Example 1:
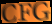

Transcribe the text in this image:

CFG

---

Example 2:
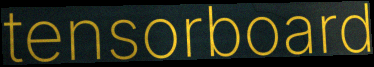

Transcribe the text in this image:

tensorboard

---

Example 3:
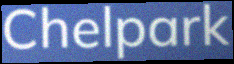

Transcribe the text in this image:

Chelpark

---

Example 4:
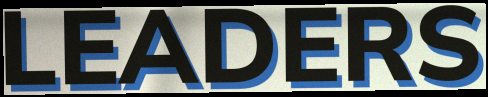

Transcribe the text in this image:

LEADERS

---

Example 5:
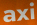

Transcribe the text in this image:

axi